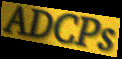
ADCPs